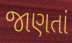
જાણતાં